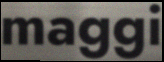
maggi